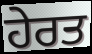
ਹੇਰਤ